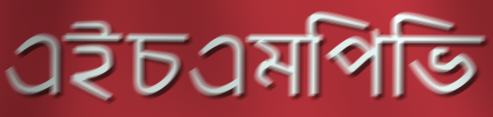
এইচএমপিভি